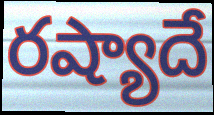
రష్యాదే